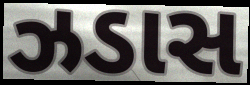
ઝડાસ